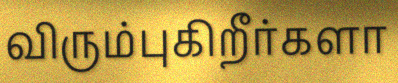
விரும்புகிறீர்களா